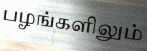
பழங்களிலும்